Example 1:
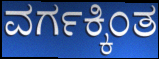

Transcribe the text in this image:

ವರ್ಗಕ್ಕಿಂತ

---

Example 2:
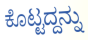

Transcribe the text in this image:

ಕೊಟ್ಟದ್ದನ್ನು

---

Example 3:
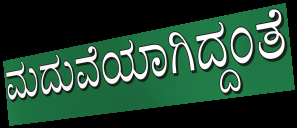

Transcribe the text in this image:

ಮದುವೆಯಾಗಿದ್ದಂತೆ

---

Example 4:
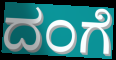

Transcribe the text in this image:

ದಂಗೆ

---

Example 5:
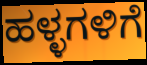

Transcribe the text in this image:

ಹಳ್ಳಗಳಿಗೆ